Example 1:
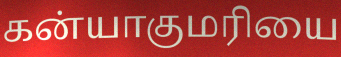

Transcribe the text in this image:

கன்யாகுமரியை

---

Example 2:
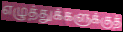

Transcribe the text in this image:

எழுத்துக்களுக்குத்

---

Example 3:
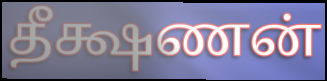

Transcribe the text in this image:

தீக்ஷணன்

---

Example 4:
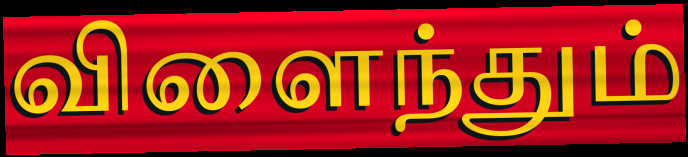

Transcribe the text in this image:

விளைந்தும்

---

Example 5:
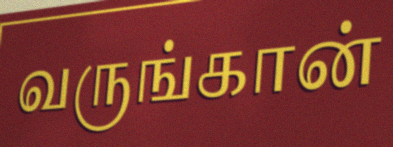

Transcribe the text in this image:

வருங்கான்